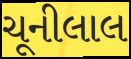
ચૂનીલાલ